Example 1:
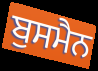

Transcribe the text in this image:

ਬੁਸਮੈਨ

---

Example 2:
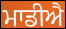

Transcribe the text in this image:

ਮਾਡੀਐ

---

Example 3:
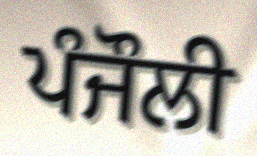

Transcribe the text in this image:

ਪੰਜੌਲੀ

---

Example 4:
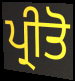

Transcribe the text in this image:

ਪ੍ਰੀਤੋ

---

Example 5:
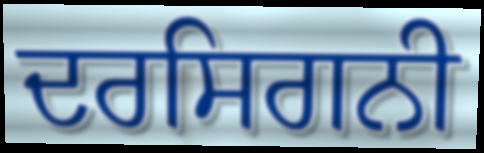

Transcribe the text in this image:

ਦਰਸਿਗਨੀ